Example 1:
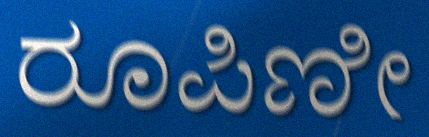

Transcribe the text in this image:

ರೂಪಿಣೀ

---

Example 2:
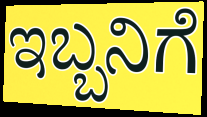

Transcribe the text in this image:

ಇಬ್ಬನಿಗೆ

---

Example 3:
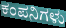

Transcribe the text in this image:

ಕಂಪನಿಗಳು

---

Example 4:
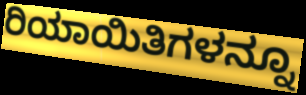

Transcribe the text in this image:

ರಿಯಾಯಿತಿಗಳನ್ನೂ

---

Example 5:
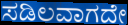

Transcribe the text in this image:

ಸಡಿಲವಾಗದೇ